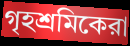
গৃহশ্রমিকেরা